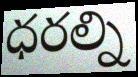
ధరల్ని